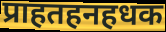
प्राहतहनहधक